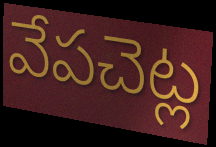
వేపచెట్ల